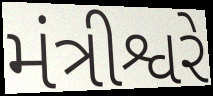
મંત્રીશ્વરે